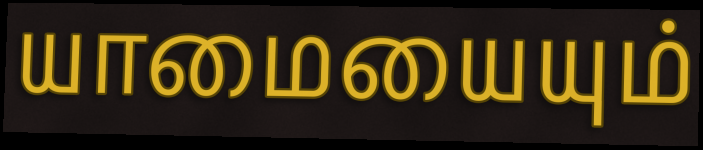
யாமையையும்